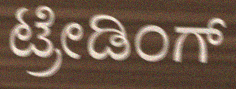
ಟ್ರೇಡಿಂಗ್